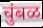
चुंबळ